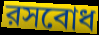
রসবোধ